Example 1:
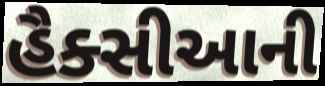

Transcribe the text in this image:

હૈક્સીઆની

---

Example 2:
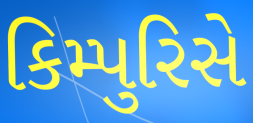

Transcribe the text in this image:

કિમ્પુરિસે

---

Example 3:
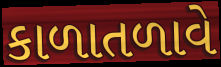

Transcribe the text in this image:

કાળાતળાવે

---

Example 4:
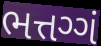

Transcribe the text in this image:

ભત્તગ્ગં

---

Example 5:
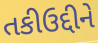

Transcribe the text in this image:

તકીઉદ્દીને